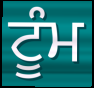
ਟੂੰਮ